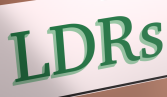
LDRs